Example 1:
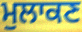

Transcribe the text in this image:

ਮੁਲਾਕਣ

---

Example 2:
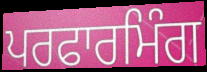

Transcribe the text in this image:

ਪਰਫਾਰਮਿੰਗ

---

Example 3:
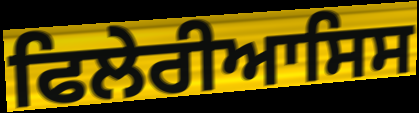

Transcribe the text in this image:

ਫਿਲੇਰੀਆਸਿਸ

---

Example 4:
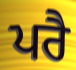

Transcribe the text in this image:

ਪਰੈ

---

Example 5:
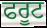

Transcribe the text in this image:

ਫਰੂਟ